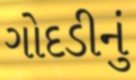
ગોદડીનું